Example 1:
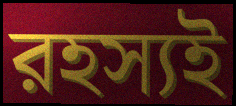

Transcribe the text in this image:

রহস্যই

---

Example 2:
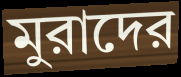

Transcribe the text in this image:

মুরাদের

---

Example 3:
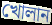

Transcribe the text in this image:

খোলান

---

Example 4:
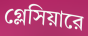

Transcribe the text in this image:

গ্লেসিয়ারে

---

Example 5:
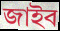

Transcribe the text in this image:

জাইব